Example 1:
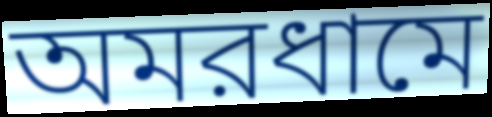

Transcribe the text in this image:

অমরধামে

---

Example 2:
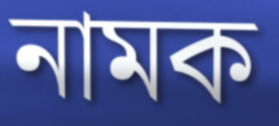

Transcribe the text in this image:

নামক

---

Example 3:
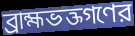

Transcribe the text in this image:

ব্রাহ্মভক্তগণের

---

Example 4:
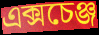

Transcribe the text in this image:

এক্সচেঞ্জ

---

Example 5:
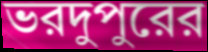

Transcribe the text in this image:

ভরদুপুরের